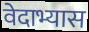
वेदाभ्यास